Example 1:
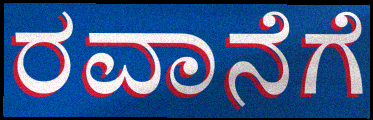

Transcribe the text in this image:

ರವಾನೆಗೆ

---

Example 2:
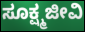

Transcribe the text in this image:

ಸೂಕ್ಷ್ಮಜೀವಿ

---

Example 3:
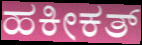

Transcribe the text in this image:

ಹಕೀಕತ್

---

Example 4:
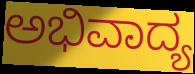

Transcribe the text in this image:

ಅಭಿವಾದ್ಯ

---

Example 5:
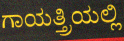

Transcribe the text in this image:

ಗಾಯತ್ತ್ರಿಯಲ್ಲಿ